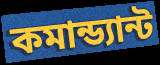
কমান্ড্যান্ট